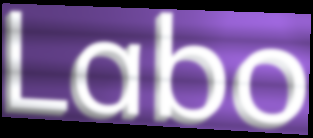
Labo